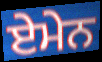
ਏਮੇਨ